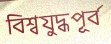
বিশ্বযুদ্ধপূর্ব